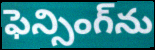
ఫెన్సింగ్‌ను